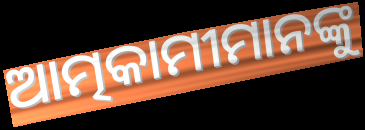
ଆତ୍ମକାମୀମାନଙ୍କୁ